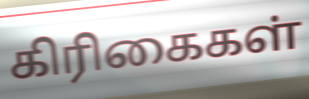
கிரிகைகள்